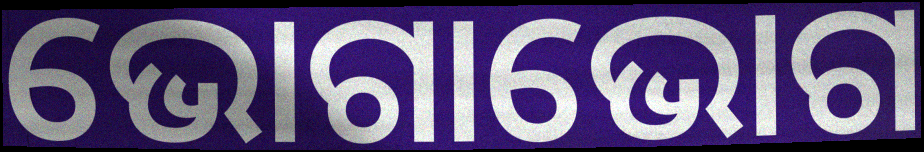
ଭୋଗାଭୋଗ